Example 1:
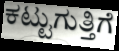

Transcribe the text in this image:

ಕಟ್ಟುಗುತ್ತಿಗೆ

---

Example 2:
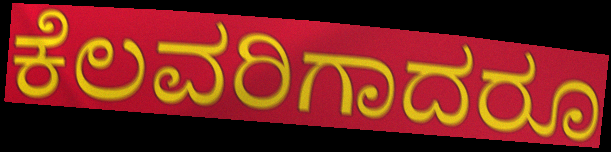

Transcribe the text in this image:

ಕೆಲವರಿಗಾದರೂ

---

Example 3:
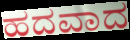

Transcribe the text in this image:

ಹದವಾದ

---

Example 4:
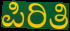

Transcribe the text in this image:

ಪಿರಿತಿ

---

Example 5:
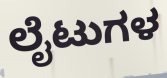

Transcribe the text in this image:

ಲೈಟುಗಳ